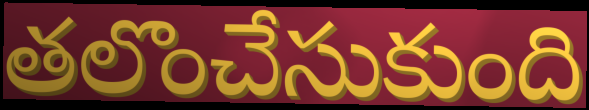
తలొంచేసుకుంది